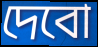
দেবো